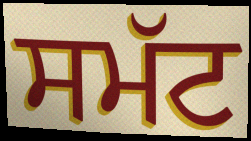
ਸਮੱਟ